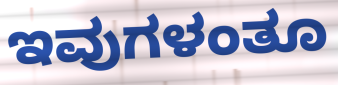
ಇವುಗಳಂತೂ